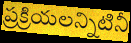
ప్రక్రియలన్నిటినీ